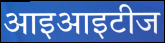
आइआइटीज